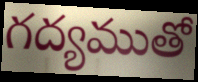
గద్యముతో